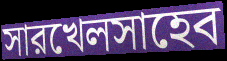
সারখেলসাহেব